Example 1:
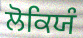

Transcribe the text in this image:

ਲੋਕਿਯੰ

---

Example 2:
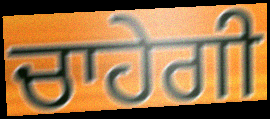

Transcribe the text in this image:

ਚਾਹੇਗੀ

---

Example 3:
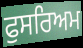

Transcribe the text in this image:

ਫੁਸਰਿਅਮ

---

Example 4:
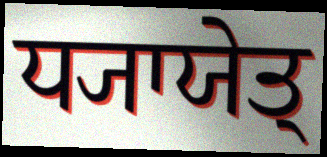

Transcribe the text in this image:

ਧ੍ਯਾਯੇਤ੍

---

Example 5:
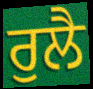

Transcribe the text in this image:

ਰੁਲੈ